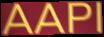
AAPI